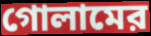
গোলামের